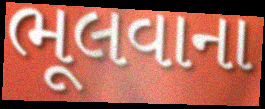
ભૂલવાના